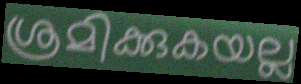
ശ്രമിക്കുകയല്ല